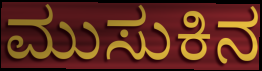
ಮುಸುಕಿನ